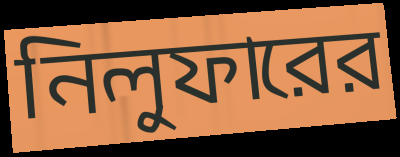
নিলুফারের